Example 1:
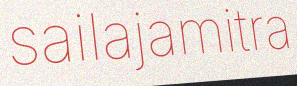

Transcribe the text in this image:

sailajamitra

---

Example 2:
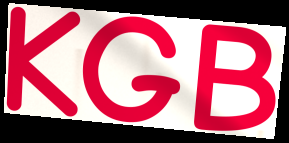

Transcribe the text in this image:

KGB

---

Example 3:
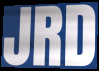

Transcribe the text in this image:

JRD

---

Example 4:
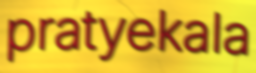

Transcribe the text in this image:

pratyekala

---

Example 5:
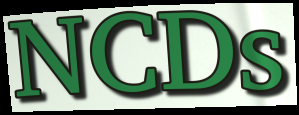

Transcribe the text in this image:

NCDs